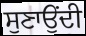
ਸੁਣਾਉਂਦੀ